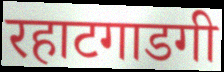
रहाटगाडगी